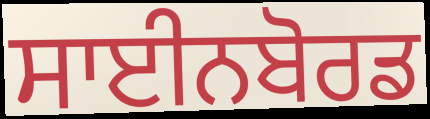
ਸਾਈਨਬੋਰਡ